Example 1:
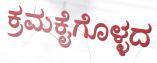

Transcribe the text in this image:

ಕ್ರಮಕೈಗೊಳ್ಳದ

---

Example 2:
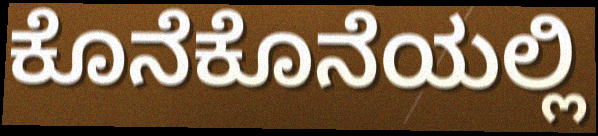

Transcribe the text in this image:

ಕೊನೆಕೊನೆಯಲ್ಲಿ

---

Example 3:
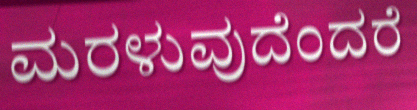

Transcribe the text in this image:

ಮರಳುವುದೆಂದರೆ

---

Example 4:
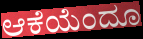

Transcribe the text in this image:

ಆಕೆಯೆಂದೂ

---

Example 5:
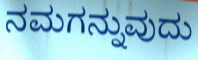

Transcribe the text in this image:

ನಮಗನ್ನುವುದು